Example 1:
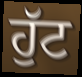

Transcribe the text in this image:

ਹੁੱਟ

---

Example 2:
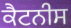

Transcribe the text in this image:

ਕੈਟਨੀਸ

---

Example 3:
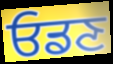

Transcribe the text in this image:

ਓਡਣ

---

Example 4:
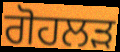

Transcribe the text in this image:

ਗੋਹਲੜ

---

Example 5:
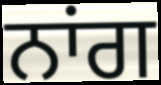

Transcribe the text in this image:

ਨਾਂਗ